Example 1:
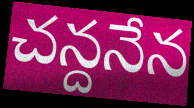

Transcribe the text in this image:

చన్దనేన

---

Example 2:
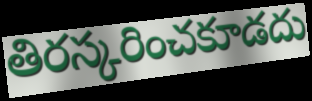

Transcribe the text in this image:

తిరస్కరించకూడదు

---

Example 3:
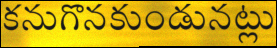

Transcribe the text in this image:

కనుగొనకుండునట్లు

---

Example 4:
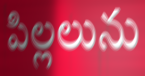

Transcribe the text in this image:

పిల్లలును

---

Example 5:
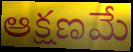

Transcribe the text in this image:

ఆక్షణమే